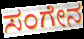
ಸಂಗೇನ